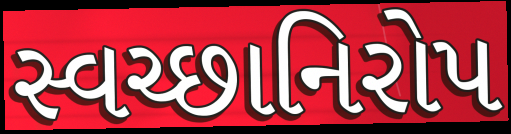
સ્વચ્છાનિરોપ